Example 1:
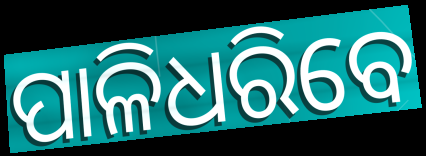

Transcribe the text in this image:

ପାଳିଧରିବେ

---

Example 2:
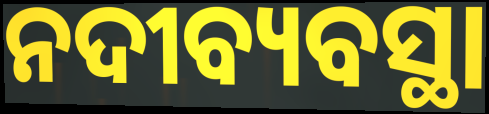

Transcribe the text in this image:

ନଦୀବ୍ୟବସ୍ଥା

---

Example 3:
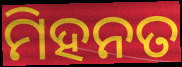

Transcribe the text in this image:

ମିହନତ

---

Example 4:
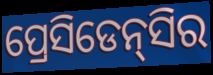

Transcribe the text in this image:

ପ୍ରେସିଡେନ୍‌ସିର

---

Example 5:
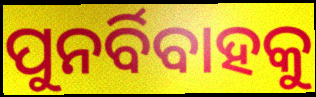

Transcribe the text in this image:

ପୁନର୍ବିବାହକୁ